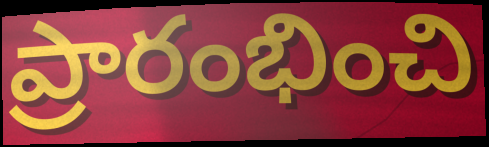
ప్రారంభించి